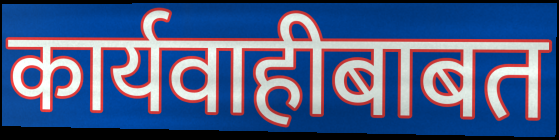
कार्यवाहीबाबत